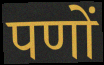
पणों